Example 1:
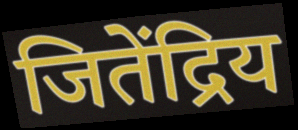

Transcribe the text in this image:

जितेंद्रिय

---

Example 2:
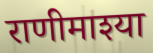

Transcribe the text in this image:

राणीमाश्या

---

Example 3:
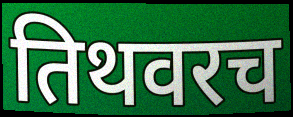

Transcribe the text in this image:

तिथवरच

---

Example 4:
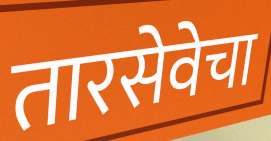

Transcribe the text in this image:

तारसेवेचा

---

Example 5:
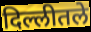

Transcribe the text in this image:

दिल्लीतले